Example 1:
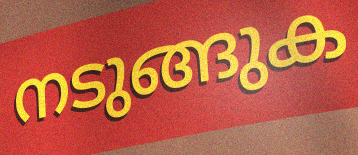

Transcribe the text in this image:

നടുങ്ങുക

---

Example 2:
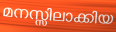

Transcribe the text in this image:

മനസ്സിലാക്കിയ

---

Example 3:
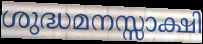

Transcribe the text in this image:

ശുദ്ധമനസ്സാക്ഷി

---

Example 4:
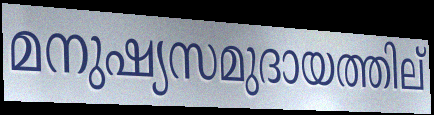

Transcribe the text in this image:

മനുഷ്യസമുദായത്തില്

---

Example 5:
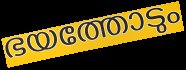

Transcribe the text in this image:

ഭയത്തോടും